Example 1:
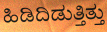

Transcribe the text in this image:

ಹಿಡಿದಿಡುತ್ತಿತ್ತು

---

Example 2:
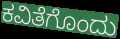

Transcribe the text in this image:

ಕವಿತೆಗೊಂದು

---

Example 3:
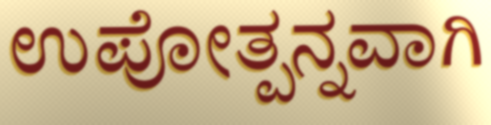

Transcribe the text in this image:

ಉಪೋತ್ಪನ್ನವಾಗಿ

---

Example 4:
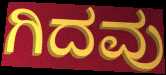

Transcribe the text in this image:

ಗಿದವು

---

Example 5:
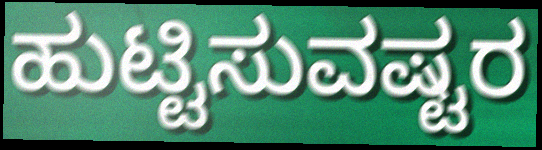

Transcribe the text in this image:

ಹುಟ್ಟಿಸುವಷ್ಟರ